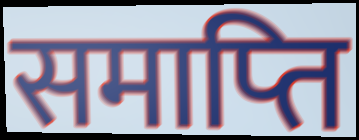
समाप्‍ति